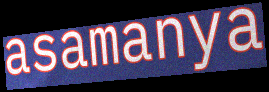
asamanya